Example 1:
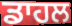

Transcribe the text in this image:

ਡਾਹਲ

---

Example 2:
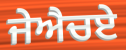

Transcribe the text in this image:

ਜੇਐਚਏ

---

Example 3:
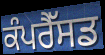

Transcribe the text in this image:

ਕੰਪਰੈੱਸਡ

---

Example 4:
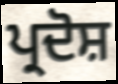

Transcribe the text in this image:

ਪ੍ਰਦੋਸ਼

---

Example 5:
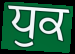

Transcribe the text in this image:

ਧੁਕ